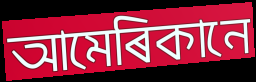
আমেৰিকানে